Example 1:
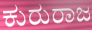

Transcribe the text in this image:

ಕುರುರಾಜ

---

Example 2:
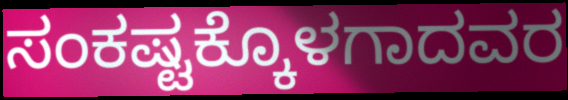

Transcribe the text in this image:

ಸಂಕಷ್ಟಕ್ಕೊಳಗಾದವರ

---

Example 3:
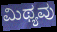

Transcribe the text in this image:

ಮಿಥ್ಯವು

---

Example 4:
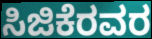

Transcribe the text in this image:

ಸಿಜಿಕೆರವರ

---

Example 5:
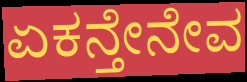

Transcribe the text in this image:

ಏಕನ್ತೇನೇವ